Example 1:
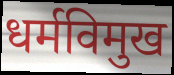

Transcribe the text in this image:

धर्मविमुख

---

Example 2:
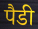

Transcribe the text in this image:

पैडी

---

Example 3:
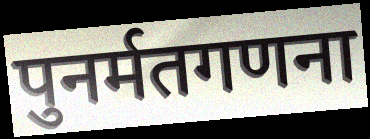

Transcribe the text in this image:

पुनर्मतगणना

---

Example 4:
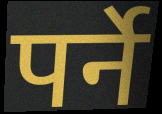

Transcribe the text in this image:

पर्ने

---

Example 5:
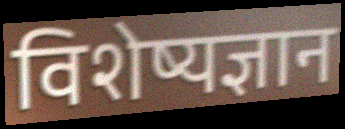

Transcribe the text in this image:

विशेष्यज्ञान